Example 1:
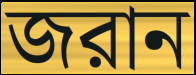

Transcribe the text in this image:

জরান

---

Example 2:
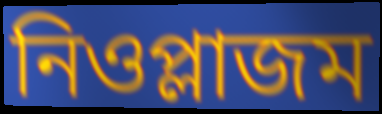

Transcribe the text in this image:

নিওপ্লাজম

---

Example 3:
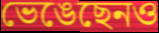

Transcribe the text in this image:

ভেঙেছেনও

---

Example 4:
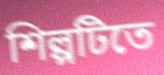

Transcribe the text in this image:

শিল্পটিতে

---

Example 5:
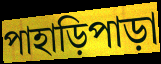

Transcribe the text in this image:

পাহাড়িপাড়া